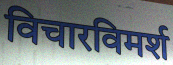
विचारविमर्श